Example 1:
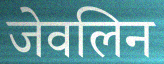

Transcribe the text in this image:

जेवलिन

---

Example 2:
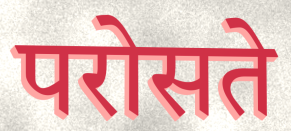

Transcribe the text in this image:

परोसते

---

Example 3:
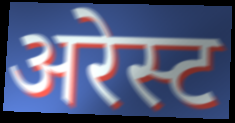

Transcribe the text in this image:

अरेस्ट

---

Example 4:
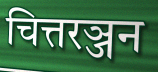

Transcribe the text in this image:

चित्तरञ्जन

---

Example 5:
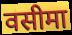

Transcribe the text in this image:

वसीमा